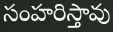
సంహరిస్తావు